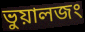
ভুয়ালজং